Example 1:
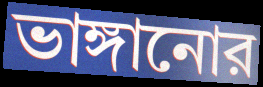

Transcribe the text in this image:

ভাঙ্গানোর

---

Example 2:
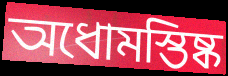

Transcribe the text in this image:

অধোমস্তিষ্ক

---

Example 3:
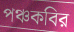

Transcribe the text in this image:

পঞ্চকবির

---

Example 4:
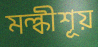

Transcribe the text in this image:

মল্কীশূয়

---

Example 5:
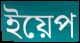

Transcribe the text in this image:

ইয়েপ